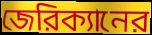
জেরিক্যানের